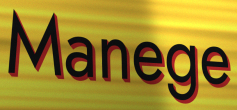
Manege